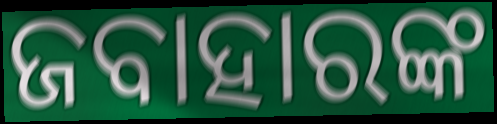
ଜବାହାରଙ୍କ